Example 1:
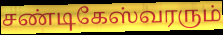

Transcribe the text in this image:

சண்டிகேஸ்வரரும்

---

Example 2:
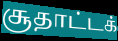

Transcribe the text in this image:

சூதாட்டக்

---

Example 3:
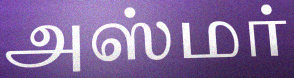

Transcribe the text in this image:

அஸ்மர்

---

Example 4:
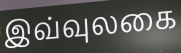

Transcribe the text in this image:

இவ்வுலகை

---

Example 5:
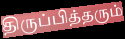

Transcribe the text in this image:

திருப்பித்தரும்